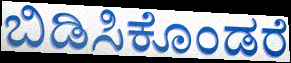
ಬಿಡಿಸಿಕೊಂಡರೆ